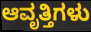
ಆವೃತ್ತಿಗಳು